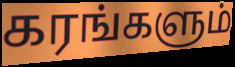
கரங்களும்